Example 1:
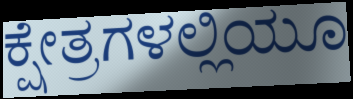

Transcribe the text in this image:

ಕ್ಷೇತ್ರಗಳಲ್ಲಿಯೂ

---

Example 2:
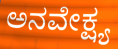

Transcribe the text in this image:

ಅನವೇಕ್ಷ್ಯ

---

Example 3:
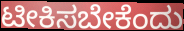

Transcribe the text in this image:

ಟೀಕಿಸಬೇಕೆಂದು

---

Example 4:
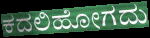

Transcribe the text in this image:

ಕದಲಿಹೋಗದು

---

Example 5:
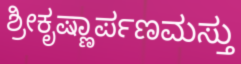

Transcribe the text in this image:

ಶ್ರೀಕೃಷ್ಣಾರ್ಪಣಮಸ್ತು